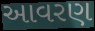
આવરણ